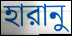
হারানু